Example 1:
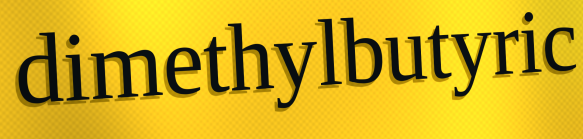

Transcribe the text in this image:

dimethylbutyric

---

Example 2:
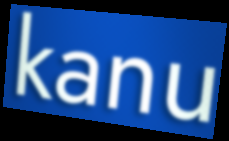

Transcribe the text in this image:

kanu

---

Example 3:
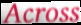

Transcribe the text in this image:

Across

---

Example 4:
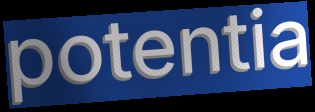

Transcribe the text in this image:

potentia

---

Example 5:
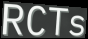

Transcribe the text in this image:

RCTs